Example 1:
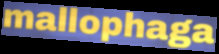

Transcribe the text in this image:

mallophaga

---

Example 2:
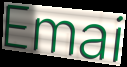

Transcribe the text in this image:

Emai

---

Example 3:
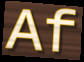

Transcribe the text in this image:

Af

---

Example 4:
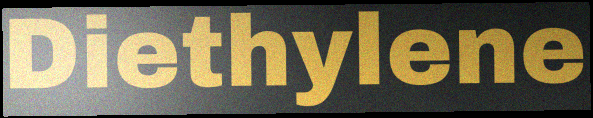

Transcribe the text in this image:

Diethylene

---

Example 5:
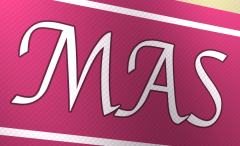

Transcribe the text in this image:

MAS